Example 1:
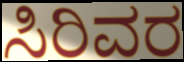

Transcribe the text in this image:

ಸಿರಿವರ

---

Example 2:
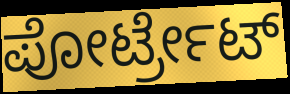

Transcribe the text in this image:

ಪೋರ್ಟ್ರೇಟ್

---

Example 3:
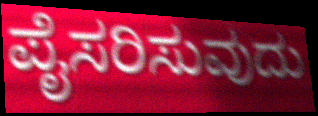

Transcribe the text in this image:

ಪೈಸರಿಸುವುದು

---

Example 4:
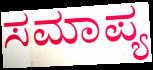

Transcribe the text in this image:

ಸಮಾಪ್ಯ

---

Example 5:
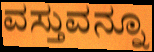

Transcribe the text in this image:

ವಸ್ತುವನ್ನೂ